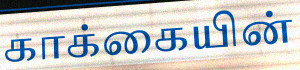
காக்கையின்